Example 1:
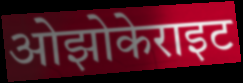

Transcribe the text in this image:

ओझोकेराइट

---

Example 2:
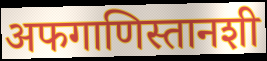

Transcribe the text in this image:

अफगाणिस्तानशी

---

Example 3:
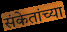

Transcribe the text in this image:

संकेतांच्या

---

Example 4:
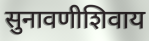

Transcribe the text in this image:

सुनावणीशिवाय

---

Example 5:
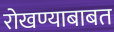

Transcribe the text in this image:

रोखण्याबाबत